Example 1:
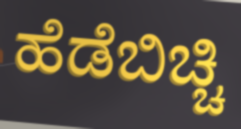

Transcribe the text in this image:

ಹೆಡೆಬಿಚ್ಚಿ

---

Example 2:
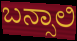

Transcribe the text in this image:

ಬನ್ಸಾಲಿ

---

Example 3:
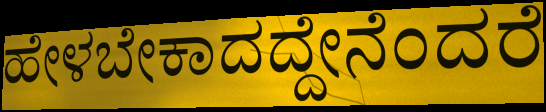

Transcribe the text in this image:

ಹೇಳಬೇಕಾದದ್ದೇನೆಂದರೆ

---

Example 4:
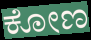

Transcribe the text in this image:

ಕೋಣ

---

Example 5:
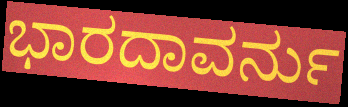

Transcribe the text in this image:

ಭಾರದಾವರ್ನು